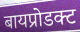
बायप्रोडक्ट